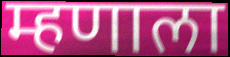
म्‍हणाला